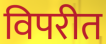
विपरीत